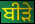
ਬੀੜੇ